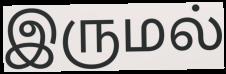
இருமல்